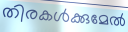
തിരകൾക്കുമേൽ